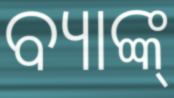
ବ୍ୟାଙ୍କ୍